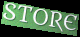
STORE